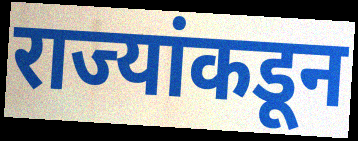
राज्यांकडून